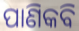
ପାଣିକବି